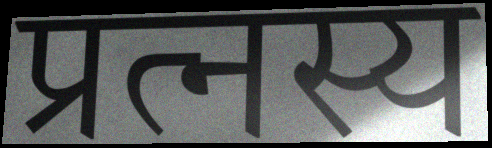
प्रत्नस्य